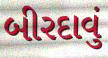
બીરદાવું